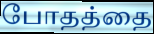
போதத்தை